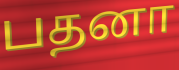
பதனா